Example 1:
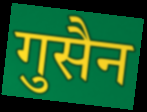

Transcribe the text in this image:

गुसैन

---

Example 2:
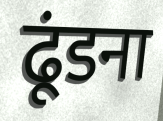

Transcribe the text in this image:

ढूंडना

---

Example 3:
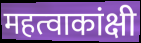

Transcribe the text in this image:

महत्‍वाकांक्षी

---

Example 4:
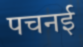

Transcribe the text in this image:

पचनई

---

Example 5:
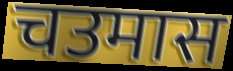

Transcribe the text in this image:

चउमास